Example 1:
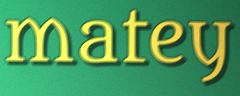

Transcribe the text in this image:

matey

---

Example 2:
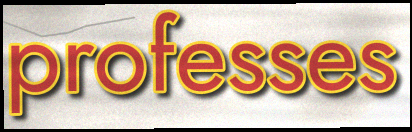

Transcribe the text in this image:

professes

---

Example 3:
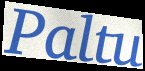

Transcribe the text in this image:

Paltu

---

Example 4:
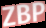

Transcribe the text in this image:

ZBP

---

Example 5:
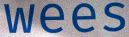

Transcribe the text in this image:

wees